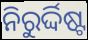
ନିରୁର୍ଦ୍ଦିଷ୍ଟ